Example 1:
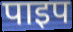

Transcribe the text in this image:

पाइप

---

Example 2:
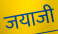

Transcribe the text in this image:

जयाजी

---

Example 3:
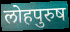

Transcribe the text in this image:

लोहपुरुष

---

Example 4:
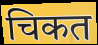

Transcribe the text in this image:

चिकत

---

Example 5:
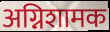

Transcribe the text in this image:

अग्निशामक